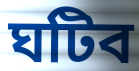
ঘটিব